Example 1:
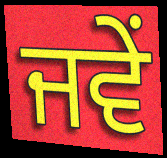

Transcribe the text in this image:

ਜਵੇਂ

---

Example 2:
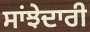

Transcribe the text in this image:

ਸਾਂਝੇਦਾਰੀ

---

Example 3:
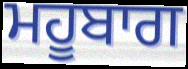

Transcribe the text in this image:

ਮਹੂਬਾਗ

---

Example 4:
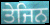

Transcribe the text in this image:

ਤੇਜਿਨ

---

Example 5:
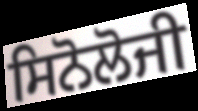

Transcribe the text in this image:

ਸਿਨੋਲੋਜੀ